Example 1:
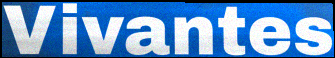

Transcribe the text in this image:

Vivantes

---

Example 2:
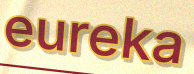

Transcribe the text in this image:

eureka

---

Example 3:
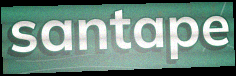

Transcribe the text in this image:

santape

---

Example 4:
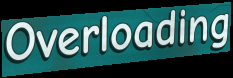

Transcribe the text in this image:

Overloading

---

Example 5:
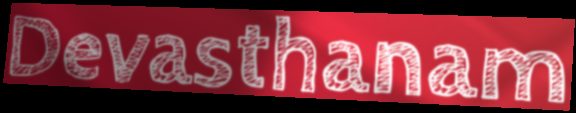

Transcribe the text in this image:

Devasthanam